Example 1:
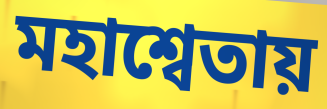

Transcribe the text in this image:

মহাশ্বেতায়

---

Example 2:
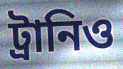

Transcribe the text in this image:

ট্রানিও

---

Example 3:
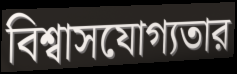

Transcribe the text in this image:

বিশ্বাসযোগ্যতার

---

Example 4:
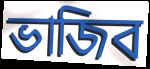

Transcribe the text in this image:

ভাজিব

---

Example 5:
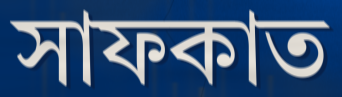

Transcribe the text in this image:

সাফকাত